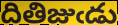
దితిజుఁడు